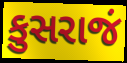
કુસરાજં